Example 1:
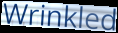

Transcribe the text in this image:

Wrinkled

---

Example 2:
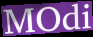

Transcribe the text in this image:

MOdi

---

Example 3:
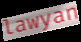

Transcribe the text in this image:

lawyan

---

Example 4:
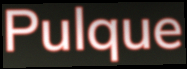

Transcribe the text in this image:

Pulque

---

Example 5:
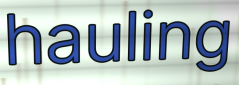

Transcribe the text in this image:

hauling